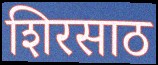
शिरसाठ